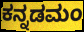
ಕನ್ನಡಮಂ